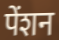
पेंशन